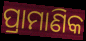
ପ୍ରାମାଣିକ